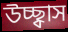
উচ্ছ্বাস